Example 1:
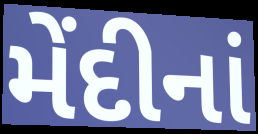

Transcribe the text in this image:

મેંદીનાં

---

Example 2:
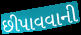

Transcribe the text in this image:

છીપાવવાની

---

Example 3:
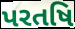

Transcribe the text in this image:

પરતષિ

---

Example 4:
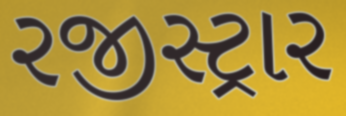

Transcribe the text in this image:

રજીસ્ટ્રાર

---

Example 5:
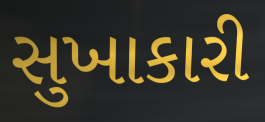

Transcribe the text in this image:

સુખાકારી